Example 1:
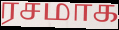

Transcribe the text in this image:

ரசமாக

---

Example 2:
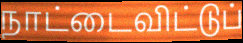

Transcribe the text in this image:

நாட்டைவிட்டுப்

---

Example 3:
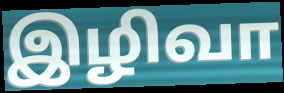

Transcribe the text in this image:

இழிவா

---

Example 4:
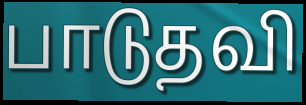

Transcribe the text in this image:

பாடுதவி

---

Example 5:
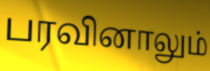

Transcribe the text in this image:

பரவினாலும்